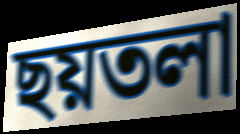
ছয়তলা